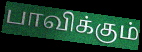
பாவிக்கும்